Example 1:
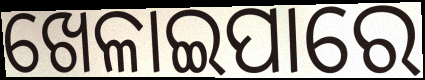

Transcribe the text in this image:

ଖେଳାଇପାରେ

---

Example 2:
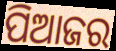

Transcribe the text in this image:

ପିଆଜର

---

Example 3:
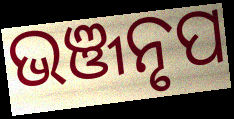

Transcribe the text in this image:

ଭଞ୍ଜନୃପ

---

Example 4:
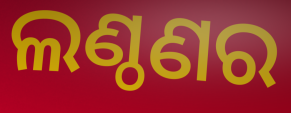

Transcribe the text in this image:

ଲଣ୍ଠଣର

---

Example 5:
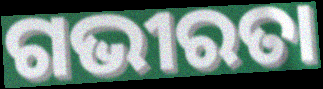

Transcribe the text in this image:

ଗଭୀରତା